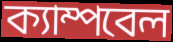
ক্যাম্পবেল